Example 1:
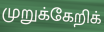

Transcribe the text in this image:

முறுக்கேறிக்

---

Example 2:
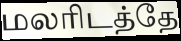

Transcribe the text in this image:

மலரிடத்தே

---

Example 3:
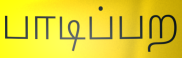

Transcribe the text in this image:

பாடிப்பற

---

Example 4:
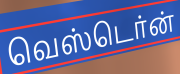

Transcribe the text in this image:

வெஸ்டெர்ன்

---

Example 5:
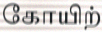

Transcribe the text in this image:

கோயிற்